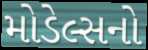
મોડેલ્સનો